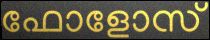
ഫോളോസ്